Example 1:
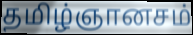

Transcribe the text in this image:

தமிழ்ஞானசம்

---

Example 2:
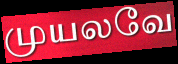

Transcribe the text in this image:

முயலவே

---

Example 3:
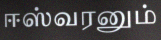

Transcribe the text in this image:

ஈஸ்வரனும்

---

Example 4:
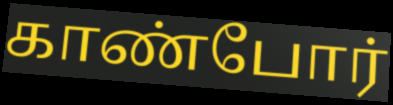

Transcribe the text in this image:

காண்போர்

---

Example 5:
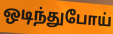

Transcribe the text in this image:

ஒடிந்துபோய்